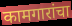
कामगारांचा